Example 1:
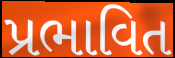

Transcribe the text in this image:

પ્રભાવિત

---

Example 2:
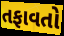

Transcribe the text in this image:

તફાવતો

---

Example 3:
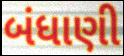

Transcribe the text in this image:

બંધાણી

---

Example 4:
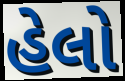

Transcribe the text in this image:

હેલો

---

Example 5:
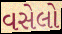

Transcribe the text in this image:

વસેલો